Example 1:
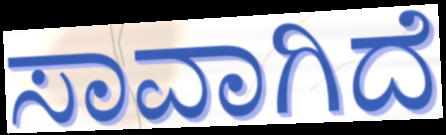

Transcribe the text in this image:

ಸಾವಾಗಿದೆ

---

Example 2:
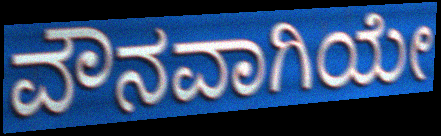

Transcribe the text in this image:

ವೌನವಾಗಿಯೇ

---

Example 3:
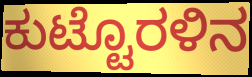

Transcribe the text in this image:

ಕುಟ್ಟೊರಳಿನ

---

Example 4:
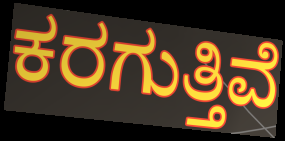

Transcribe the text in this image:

ಕರಗುತ್ತಿವೆ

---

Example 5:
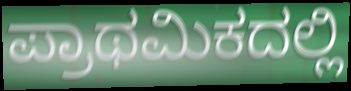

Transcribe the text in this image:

ಪ್ರಾಥಮಿಕದಲ್ಲಿ